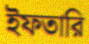
ইফতারি